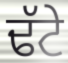
ਢੱਟੇ